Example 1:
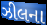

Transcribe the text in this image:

ઝીલના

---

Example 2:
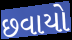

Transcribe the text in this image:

છવાયો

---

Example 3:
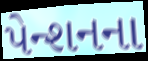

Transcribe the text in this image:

પેન્શનના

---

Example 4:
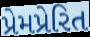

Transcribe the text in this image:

પ્રેમપ્રેરિત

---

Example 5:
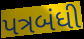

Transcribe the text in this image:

પત્રબંધી